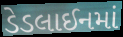
ડેડલાઈનમાં